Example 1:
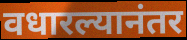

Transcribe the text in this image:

वधारल्यानंतर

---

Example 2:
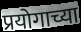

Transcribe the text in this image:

प्रयोगाच्या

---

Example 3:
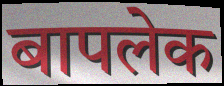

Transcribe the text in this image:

बापलेक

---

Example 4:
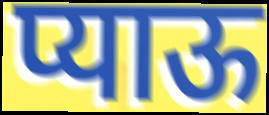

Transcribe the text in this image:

प्याऊ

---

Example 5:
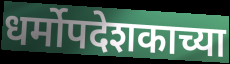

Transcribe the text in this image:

धर्मोपदेशकाच्या